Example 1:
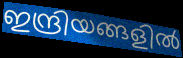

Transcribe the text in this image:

ഇന്ദ്രിയങ്ങളിൽ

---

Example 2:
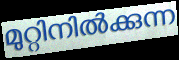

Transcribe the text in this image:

മുറ്റിനിൽക്കുന്ന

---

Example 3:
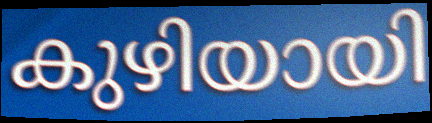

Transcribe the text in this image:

കുഴിയായി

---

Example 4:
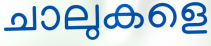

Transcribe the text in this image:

ചാലുകളെ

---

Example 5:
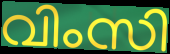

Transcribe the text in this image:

വിംസി